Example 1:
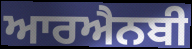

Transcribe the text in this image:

ਆਰਐਨਬੀ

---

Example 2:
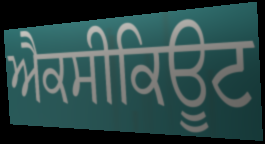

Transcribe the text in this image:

ਐਕਸੀਕਿਊਟ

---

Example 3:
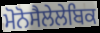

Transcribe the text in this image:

ਮੋਨੋਸੈਲੇਲੇਬਿਕ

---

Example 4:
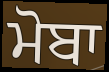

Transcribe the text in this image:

ਮੋਬਾ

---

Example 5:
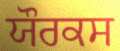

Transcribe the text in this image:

ਯੌਰਕਸ